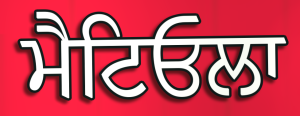
ਮੈਟਿਓਲਾ